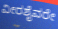
ವೀರಶೈವರೇ